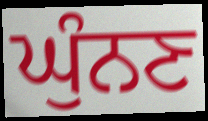
ਘੁੰਨਣ